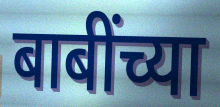
बाबींच्या